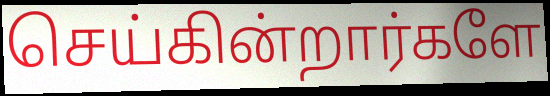
செய்கின்றார்களே